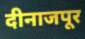
दीनाजपूर